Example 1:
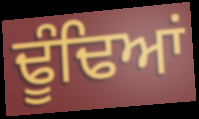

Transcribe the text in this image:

ਢੂੰਢਿਆਂ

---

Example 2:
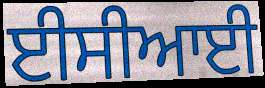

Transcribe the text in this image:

ਈਸੀਆਈ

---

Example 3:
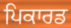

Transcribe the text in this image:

ਪਿਕਾਰਡ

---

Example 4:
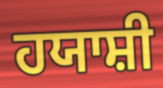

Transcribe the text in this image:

ਹਯਾਸ਼ੀ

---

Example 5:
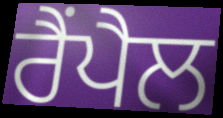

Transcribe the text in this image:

ਰੈਂਪੈਲ